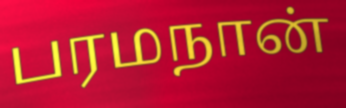
பரமநான்